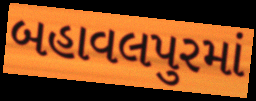
બહાવલપુરમાં